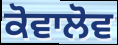
ਕੋਵਾਲੋਵ